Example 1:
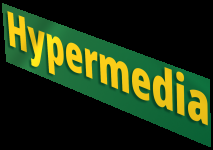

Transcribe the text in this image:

Hypermedia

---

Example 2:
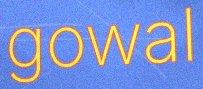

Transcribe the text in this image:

gowal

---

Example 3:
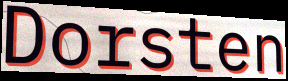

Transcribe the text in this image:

Dorsten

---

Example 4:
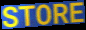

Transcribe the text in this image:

STORE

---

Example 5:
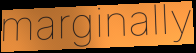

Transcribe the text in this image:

marginally